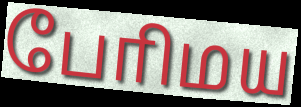
பேரிமய